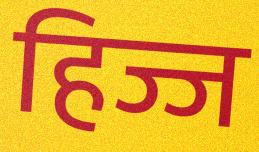
हिज्ज